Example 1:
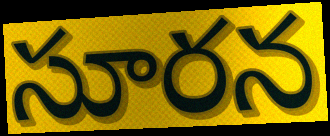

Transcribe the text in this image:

సూరన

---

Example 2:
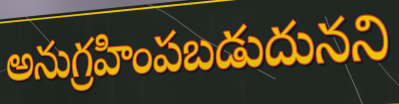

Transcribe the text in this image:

అనుగ్రహింపబడుదునని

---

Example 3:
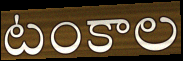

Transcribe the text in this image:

టంకాల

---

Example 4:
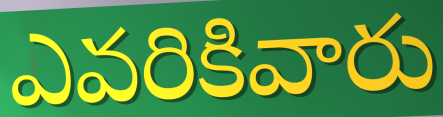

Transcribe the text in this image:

ఎవరికివారు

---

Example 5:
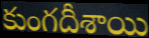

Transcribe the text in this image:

కుంగదీశాయి